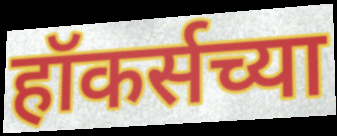
हॉकर्सच्या